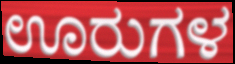
ಊರುಗಳ